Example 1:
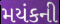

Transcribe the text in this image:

મયંકની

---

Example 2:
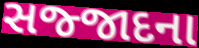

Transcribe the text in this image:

સજ્જાદના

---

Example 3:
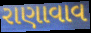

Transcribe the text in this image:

રાણાવાવ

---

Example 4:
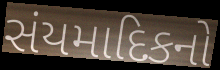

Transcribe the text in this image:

સંયમાદિકનો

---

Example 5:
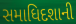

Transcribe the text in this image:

સમાધિદશાની